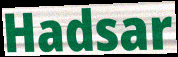
Hadsar